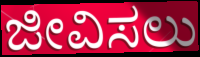
ಜೀವಿಸಲು